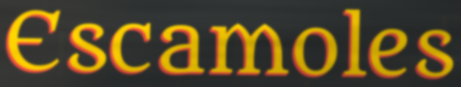
Escamoles